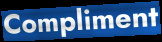
Compliment